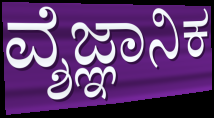
ವ್ಶೆಜ್ಞಾನಿಕ